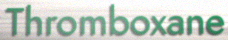
Thromboxane